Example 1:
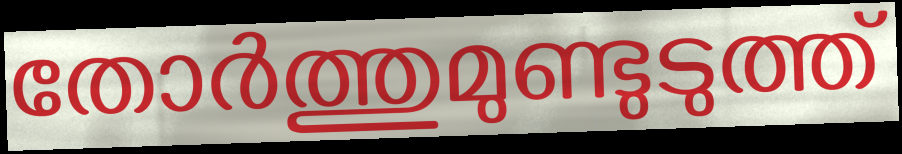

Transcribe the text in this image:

തോർത്തുമുണ്ടുടുത്ത്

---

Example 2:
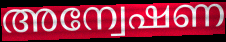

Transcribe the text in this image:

അന്വേഷണ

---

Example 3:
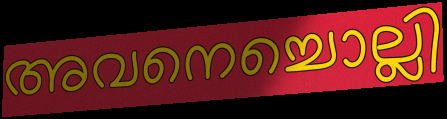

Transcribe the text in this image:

അവനെച്ചൊല്ലി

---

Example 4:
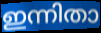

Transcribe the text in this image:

ഇന്നിതാ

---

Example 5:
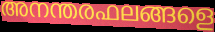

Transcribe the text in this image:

അനന്തരഫലങ്ങളെ